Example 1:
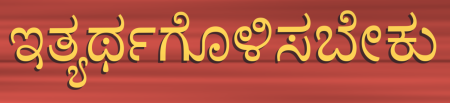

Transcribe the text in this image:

ಇತ್ಯರ್ಥಗೊಳಿಸಬೇಕು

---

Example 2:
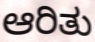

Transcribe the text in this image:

ಆರಿತು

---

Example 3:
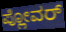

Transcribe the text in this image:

ಪ್ಲೋವರ್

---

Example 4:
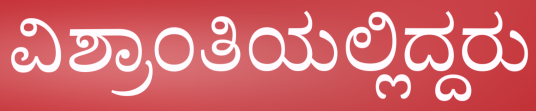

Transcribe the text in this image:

ವಿಶ್ರಾಂತಿಯಲ್ಲಿದ್ದರು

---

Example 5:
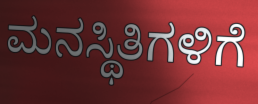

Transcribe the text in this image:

ಮನಸ್ಥಿತಿಗಳಿಗೆ